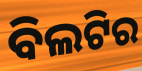
ବିଲଟିର